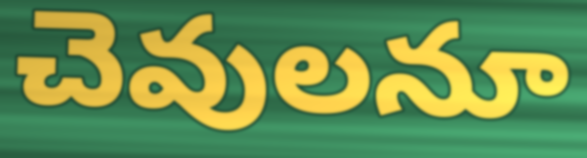
చెవులనూ